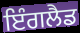
ਇੰਗਲੈਡ